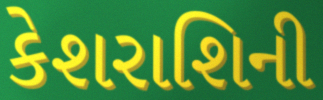
કેશરાશિની